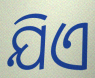
ଯିଏ